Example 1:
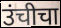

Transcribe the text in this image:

उंचीचा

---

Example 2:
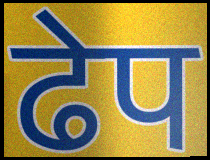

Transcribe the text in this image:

ढेप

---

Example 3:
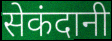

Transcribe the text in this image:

सेकंदानी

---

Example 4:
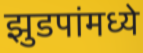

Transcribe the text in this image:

झुडपांमध्ये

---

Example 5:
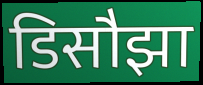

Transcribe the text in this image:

डिसौझा